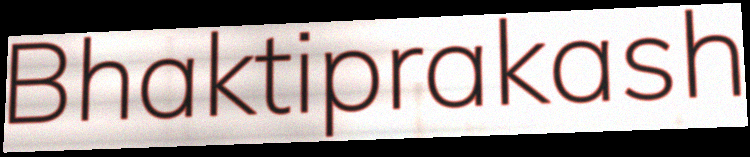
Bhaktiprakash